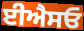
ਈਐਸਓ